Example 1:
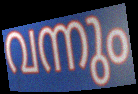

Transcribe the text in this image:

വന്നും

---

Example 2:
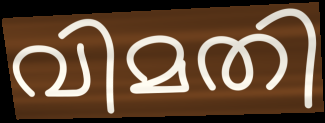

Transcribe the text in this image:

വിമതി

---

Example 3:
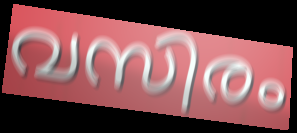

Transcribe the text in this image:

വസിരം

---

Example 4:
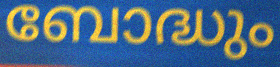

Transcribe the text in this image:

ബോദ്ധും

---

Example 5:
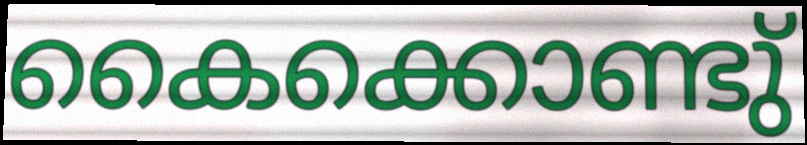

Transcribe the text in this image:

കൈക്കൊണ്ടു്